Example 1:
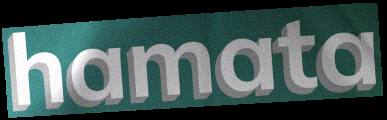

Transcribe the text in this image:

hamata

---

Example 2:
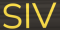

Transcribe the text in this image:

SIV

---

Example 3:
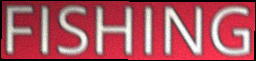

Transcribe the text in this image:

FISHING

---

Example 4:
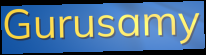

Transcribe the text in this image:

Gurusamy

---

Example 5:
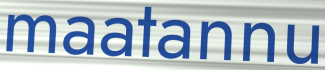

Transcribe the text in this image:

maatannu